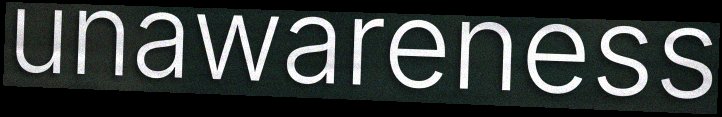
unawareness